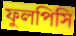
ফুলপিসি